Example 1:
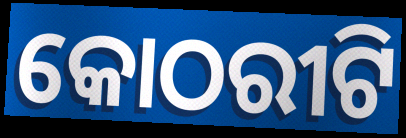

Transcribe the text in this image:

କୋଠରୀଟି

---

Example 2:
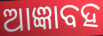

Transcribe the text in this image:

ଆଜ୍ଞାବହ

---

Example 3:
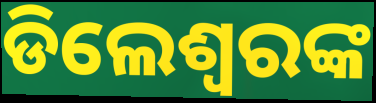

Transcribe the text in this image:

ଡିଲେଶ୍ଵରଙ୍କ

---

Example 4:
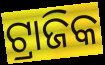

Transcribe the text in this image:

ଟ୍ରାଜିକ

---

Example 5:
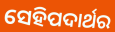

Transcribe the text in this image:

ସେହିପଦାର୍ଥର